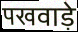
पखवाड़े